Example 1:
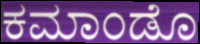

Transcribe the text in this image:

ಕಮಾಂಡೊ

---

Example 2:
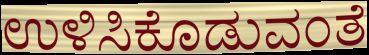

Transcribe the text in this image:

ಉಳಿಸಿಕೊಡುವಂತೆ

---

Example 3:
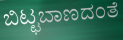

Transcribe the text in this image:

ಬಿಟ್ಟಬಾಣದಂತೆ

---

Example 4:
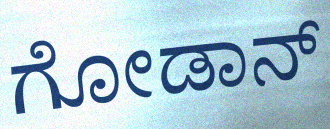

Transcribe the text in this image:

ಗೋಡಾನ್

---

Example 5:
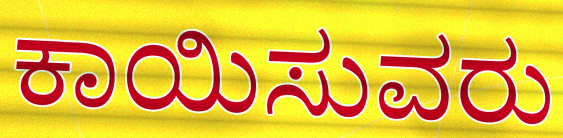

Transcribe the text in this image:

ಕಾಯಿಸುವರು